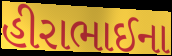
હીરાભાઈના